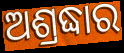
ଅଶ୍ରଦ୍ଧାର